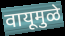
वायूमुळे